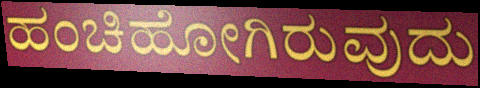
ಹಂಚಿಹೋಗಿರುವುದು